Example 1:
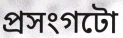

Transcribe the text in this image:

প্ৰসংগটো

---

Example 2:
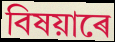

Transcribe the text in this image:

বিষয়াৰে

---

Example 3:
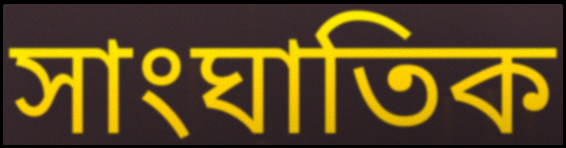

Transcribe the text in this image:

সাংঘাতিক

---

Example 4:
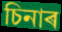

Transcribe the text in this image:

চিনাৰ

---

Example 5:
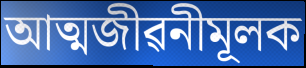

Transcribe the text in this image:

আত্মজীৱনীমূলক